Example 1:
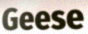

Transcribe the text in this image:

Geese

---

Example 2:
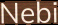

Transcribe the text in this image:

Nebi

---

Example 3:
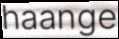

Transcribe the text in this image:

haange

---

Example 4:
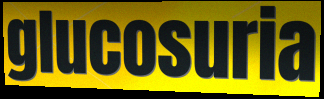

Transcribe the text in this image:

glucosuria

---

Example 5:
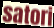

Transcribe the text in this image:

satori